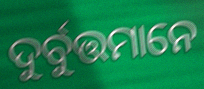
ଦୁର୍ବୁତ୍ତମାନେ